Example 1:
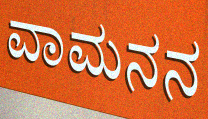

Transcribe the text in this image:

ವಾಮನನ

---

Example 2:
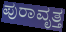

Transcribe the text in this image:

ಪುರಾವೃತ್ತ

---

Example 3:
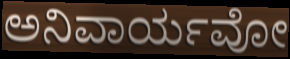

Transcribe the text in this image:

ಅನಿವಾರ್ಯವೋ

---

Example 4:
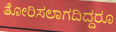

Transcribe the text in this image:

ತೋರಿಸಲಾಗದಿದ್ದರೂ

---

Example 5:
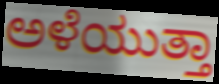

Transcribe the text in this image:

ಅಳೆಯುತ್ತಾ